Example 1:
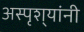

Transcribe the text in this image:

अस्पृश्यांनी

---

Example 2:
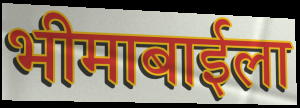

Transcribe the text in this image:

भीमाबाईला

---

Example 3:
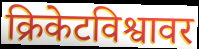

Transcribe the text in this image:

क्रिकेटविश्वावर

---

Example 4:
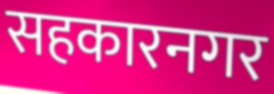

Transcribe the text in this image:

सहकारनगर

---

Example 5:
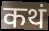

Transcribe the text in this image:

कथं